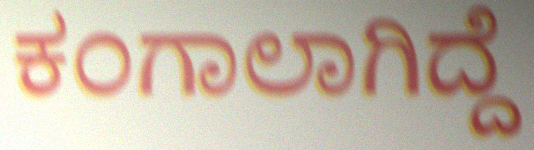
ಕಂಗಾಲಾಗಿದ್ದೆ